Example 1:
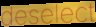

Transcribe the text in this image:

deselect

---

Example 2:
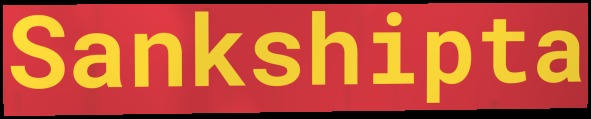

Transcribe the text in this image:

Sankshipta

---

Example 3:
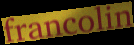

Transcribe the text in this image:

francolin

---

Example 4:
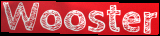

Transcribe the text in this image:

Wooster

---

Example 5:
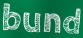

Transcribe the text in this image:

bund